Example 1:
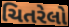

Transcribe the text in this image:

ચિતરેલો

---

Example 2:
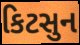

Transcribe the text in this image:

કિટસુન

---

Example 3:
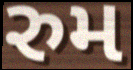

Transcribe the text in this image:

રુમ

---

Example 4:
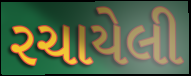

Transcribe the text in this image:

રચાયેલી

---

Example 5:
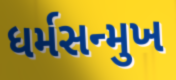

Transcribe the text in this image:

ધર્મસન્મુખ